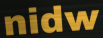
nidw